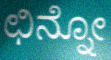
ಛಿನ್ನೋ